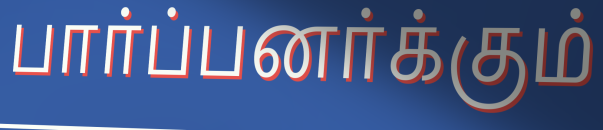
பார்ப்பனர்க்கும்